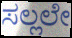
ಸಲ್ಲಲೇ